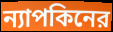
ন্যাপকিনের